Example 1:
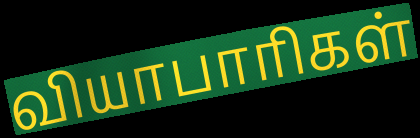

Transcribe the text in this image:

வியாபாரிகள்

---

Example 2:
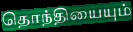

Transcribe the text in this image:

தொந்தியையும்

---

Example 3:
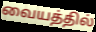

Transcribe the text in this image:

வையத்தில்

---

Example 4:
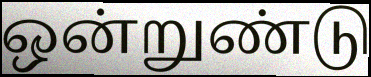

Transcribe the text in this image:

ஒன்றுண்டு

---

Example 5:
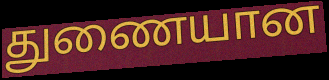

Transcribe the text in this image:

துணையான